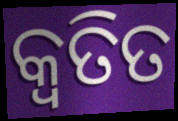
କ୍ୱତିତ